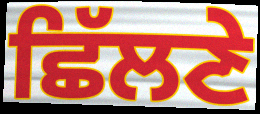
ਛਿੱਲਣੇ